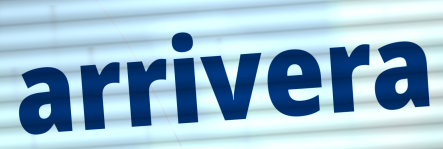
arrivera